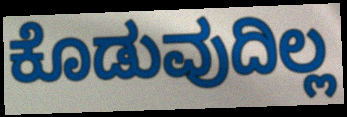
ಕೊಡುವುದಿಲ್ಲ